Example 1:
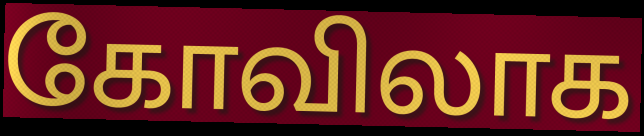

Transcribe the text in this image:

கோவிலாக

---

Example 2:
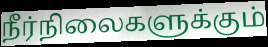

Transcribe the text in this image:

நீர்நிலைகளுக்கும்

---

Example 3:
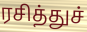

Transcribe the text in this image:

ரசித்துச்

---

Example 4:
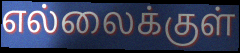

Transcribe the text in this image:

எல்லைக்குள்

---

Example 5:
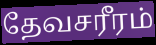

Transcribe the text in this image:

தேவசரீரம்